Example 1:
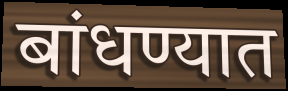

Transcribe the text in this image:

बांधण्‍यात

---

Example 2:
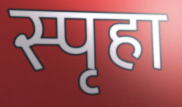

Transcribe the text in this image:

स्पृहा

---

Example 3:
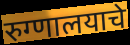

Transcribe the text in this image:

रुग्णालयाचे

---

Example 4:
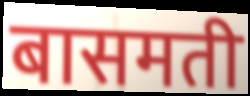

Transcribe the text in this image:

बासमती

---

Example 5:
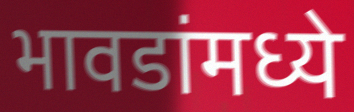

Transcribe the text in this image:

भावडांमध्ये